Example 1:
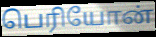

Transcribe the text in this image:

பெரியோன்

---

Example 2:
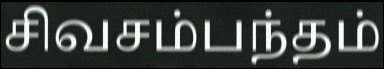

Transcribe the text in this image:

சிவசம்பந்தம்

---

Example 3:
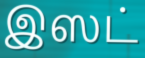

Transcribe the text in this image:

இஸட்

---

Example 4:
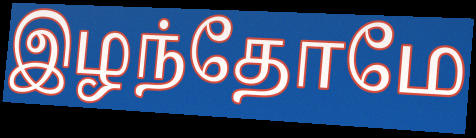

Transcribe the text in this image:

இழந்தோமே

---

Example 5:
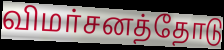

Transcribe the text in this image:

விமர்சனத்தோடு